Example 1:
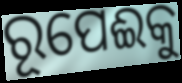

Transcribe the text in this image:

ରୂପେଈକୁ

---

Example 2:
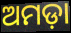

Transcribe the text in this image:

ଅମଡ଼ା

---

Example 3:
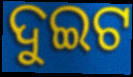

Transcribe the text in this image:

ଦୁଇଟ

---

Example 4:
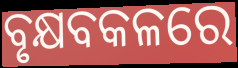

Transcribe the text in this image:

ବୃକ୍ଷବକଳରେ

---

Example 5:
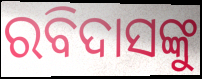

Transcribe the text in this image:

ରବିଦାସଙ୍କୁ